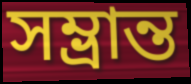
সম্ভ্রান্ত